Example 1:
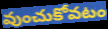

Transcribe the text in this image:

వుంచుకోవటం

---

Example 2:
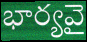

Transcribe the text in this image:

భార్యవై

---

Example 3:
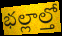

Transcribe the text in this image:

భల్లాల్తో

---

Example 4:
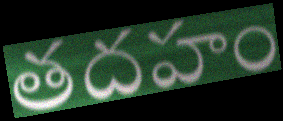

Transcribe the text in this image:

తదహం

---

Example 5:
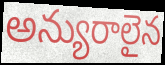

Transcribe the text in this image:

అన్యురాలైన